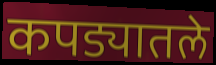
कपड्यातले